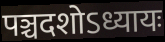
पञ्चदशोऽध्यायः